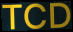
TCD